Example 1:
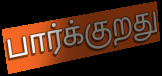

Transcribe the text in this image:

பார்க்குறது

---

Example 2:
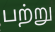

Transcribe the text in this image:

பற்று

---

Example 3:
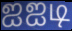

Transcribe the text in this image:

ஐஐடி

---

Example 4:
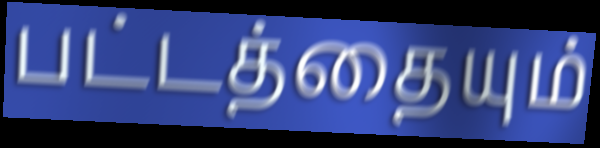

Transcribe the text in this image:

பட்டத்தையும்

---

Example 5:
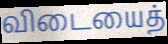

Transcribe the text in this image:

விடையைத்